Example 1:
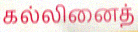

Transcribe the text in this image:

கல்லினைத்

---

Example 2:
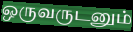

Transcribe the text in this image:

ஒருவருடனும்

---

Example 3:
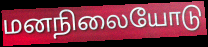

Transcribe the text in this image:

மனநிலையோடு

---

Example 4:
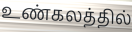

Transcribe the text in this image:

உண்கலத்தில்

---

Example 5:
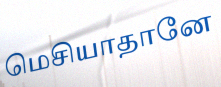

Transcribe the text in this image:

மெசியாதானே